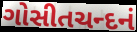
ગોસીતચન્દનં